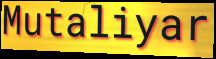
Mutaliyar